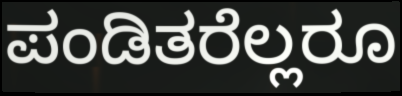
ಪಂಡಿತರೆಲ್ಲರೂ